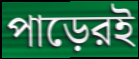
পাড়েরই